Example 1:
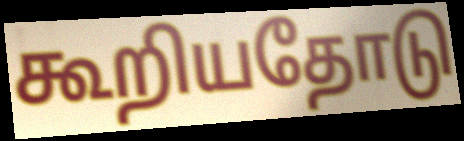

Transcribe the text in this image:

கூறியதோடு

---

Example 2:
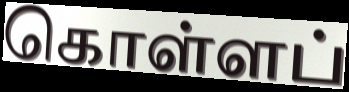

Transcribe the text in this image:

கொள்ளப்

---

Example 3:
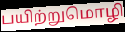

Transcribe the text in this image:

பயிற்றுமொழி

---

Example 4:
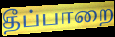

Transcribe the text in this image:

தீப்பாறை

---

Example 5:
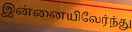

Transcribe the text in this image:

இன்னையிலேர்ந்து